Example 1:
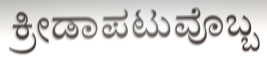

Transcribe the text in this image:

ಕ್ರೀಡಾಪಟುವೊಬ್ಬ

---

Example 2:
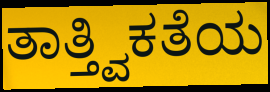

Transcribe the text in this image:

ತಾತ್ತ್ವಿಕತೆಯ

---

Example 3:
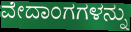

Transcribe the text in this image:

ವೇದಾಂಗಗಳನ್ನು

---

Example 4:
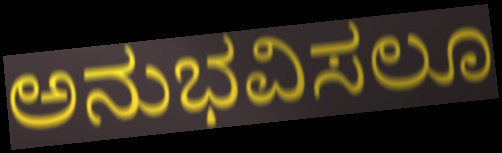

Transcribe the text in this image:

ಅನುಭವಿಸಲೂ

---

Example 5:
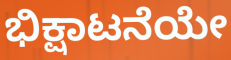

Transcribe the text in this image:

ಭಿಕ್ಷಾಟನೆಯೇ